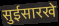
सुईसारखे